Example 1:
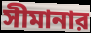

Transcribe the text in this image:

সীমানার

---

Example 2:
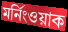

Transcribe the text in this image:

মর্নিংওয়াক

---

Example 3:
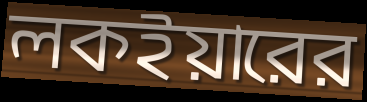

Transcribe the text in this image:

লকইয়ারের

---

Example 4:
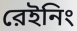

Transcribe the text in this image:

রেইনিং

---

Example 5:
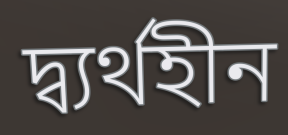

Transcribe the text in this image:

দ্ব্যর্থহীন